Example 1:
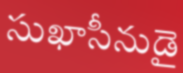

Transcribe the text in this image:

సుఖాసీనుడై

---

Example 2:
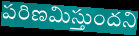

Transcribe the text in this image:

పరిణమిస్తుందని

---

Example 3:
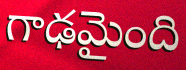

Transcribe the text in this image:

గాఢమైంది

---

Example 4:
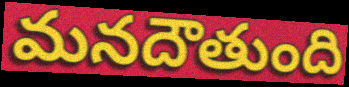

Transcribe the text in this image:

మనదౌతుంది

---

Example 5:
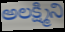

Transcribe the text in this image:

అలక్ష్మిని